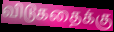
விடுகதைக்கு